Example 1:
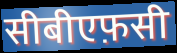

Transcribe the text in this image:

सीबीएफ़सी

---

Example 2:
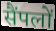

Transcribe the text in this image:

सैंपलों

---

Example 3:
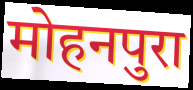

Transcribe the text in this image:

मोहनपुरा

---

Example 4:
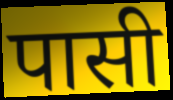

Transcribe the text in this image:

पासी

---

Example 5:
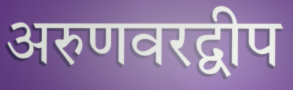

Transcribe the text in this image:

अरुणवरद्वीप